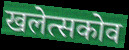
खलेत्सकोव